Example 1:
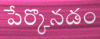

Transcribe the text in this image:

పేర్కొనడం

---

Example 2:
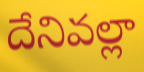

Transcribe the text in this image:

దేనివల్లా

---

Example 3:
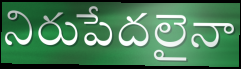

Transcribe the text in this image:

నిరుపేదలైనా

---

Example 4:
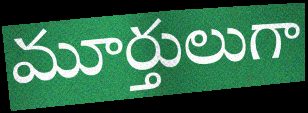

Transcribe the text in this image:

మూర్తులుగా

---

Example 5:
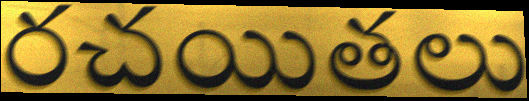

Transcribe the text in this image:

రచయితలు